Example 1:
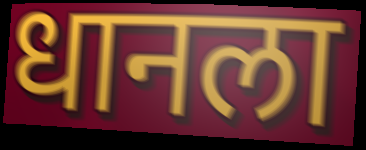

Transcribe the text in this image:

धानला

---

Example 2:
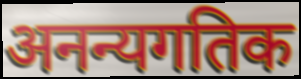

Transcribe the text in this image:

अनन्यगतिक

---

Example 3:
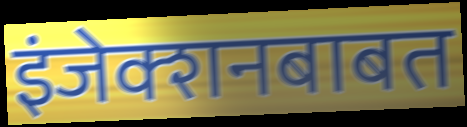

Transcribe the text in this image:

इंजेक्शनबाबत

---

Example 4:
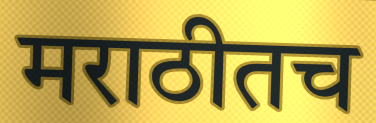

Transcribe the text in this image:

मराठीतच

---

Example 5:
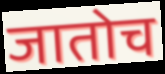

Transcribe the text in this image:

जातोच